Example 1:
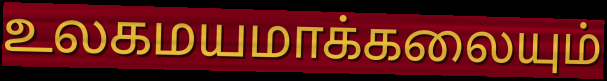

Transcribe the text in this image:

உலகமயமாக்கலையும்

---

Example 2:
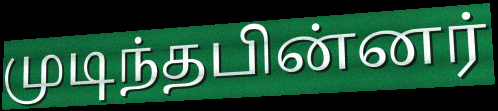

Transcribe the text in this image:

முடிந்தபின்னர்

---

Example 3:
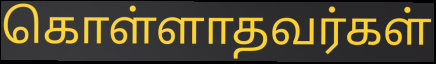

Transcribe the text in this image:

கொள்ளாதவர்கள்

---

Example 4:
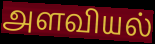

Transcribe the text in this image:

அளவியல்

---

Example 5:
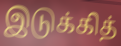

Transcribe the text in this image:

இடுக்கித்